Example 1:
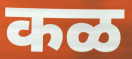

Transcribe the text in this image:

कळ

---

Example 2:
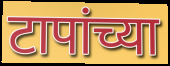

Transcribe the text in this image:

टापांच्या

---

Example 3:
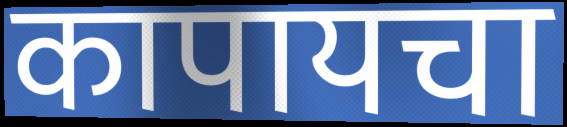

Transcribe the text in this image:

कापायचा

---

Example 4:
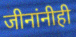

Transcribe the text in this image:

जीनांनीही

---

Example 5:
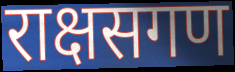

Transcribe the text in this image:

राक्षसगण